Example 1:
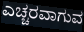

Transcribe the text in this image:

ಎಚ್ಚರವಾಗುವ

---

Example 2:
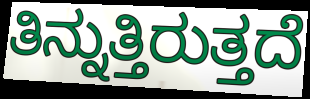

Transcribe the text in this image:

ತಿನ್ನುತ್ತಿರುತ್ತದೆ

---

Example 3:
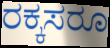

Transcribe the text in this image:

ರಕ್ಕಸರೂ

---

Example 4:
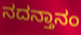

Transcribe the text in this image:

ನದನ್ತಾನಂ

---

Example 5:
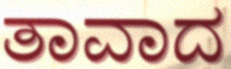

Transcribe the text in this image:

ತಾವಾದ